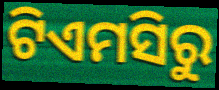
ଟିଏମସିରୁ